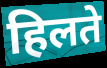
हिलते